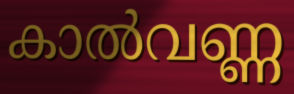
കാൽവണ്ണ